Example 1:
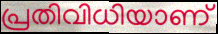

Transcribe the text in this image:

പ്രതിവിധിയാണ്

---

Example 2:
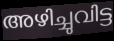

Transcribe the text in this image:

അഴിച്ചുവിട്ട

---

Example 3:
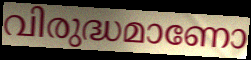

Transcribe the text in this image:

വിരുദ്ധമാണോ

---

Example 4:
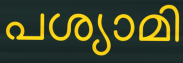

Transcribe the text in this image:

പശ്യാമി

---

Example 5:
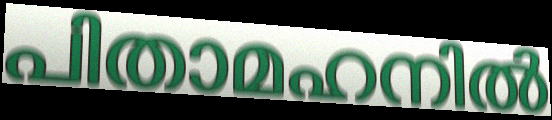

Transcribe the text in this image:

പിതാമഹനിൽ